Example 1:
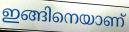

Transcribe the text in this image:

ഇങ്ങിനെയാണ്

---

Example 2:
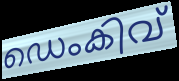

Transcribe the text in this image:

ഡെംകിവ്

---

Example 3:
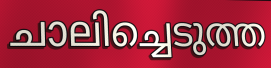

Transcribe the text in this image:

ചാലിച്ചെടുത്ത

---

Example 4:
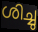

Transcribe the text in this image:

ശിച്ചു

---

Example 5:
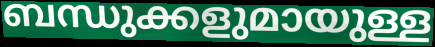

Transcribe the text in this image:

ബന്ധുക്കളുമായുള്ള